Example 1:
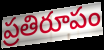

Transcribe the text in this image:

ప్రతిరూపం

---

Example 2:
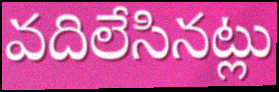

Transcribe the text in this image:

వదిలేసినట్లు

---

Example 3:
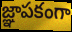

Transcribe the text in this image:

జ్ఞాపకంగా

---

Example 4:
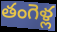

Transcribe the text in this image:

తంగెళ్ల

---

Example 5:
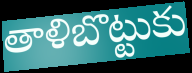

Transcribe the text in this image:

తాళిబొట్టుకు